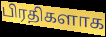
பிரதிகளாக